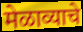
मेळाव्याचे